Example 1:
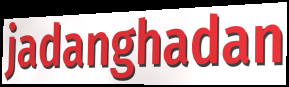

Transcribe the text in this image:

jadanghadan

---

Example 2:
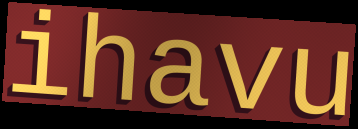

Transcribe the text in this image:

ihavu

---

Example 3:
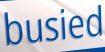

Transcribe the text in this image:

busied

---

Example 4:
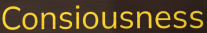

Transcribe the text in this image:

Consiousness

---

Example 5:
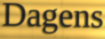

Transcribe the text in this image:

Dagens